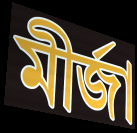
মীর্জা